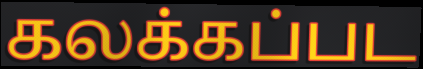
கலக்கப்பட